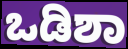
ಒಡಿಶಾ